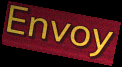
Envoy